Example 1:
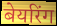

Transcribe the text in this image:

बेयरिंग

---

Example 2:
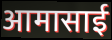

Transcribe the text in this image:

आमासाई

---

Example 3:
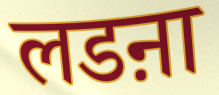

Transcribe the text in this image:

लडऩा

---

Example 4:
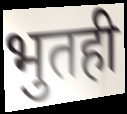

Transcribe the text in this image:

भुतही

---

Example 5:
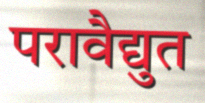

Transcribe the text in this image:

परावैद्युत